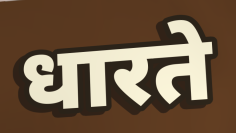
धारते